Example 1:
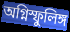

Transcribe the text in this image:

অগ্নিস্ফুলিঙ্গ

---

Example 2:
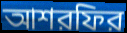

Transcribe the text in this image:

আশরফির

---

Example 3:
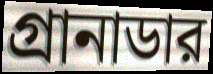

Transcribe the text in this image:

গ্রানাডার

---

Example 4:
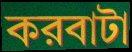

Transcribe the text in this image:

করবাটা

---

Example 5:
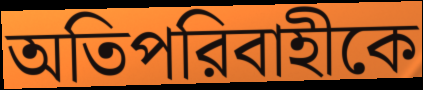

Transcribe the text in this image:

অতিপরিবাহীকে